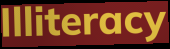
Illiteracy